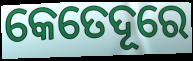
କେତେଦୂରେ